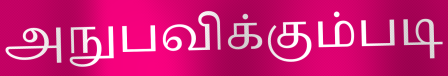
அநுபவிக்கும்படி